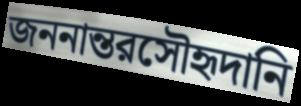
জননান্তরসৌহৃদানি